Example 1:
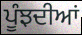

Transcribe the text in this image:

ਪੂੰਝਦੀਆਂ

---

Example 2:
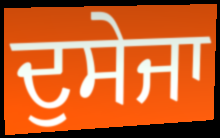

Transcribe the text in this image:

ਦੁਸੇਜਾ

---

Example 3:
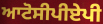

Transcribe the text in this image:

ਆਟੋਸੀਪੀਏਪੀ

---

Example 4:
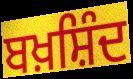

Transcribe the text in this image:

ਬਖ਼ਸ਼ਿੰਦ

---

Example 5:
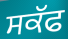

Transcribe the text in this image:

ਸਕੱਫ